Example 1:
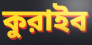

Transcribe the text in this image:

কুরাইব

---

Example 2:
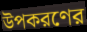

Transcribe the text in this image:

উপকরণের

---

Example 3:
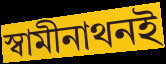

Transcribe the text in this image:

স্বামীনাথনই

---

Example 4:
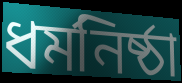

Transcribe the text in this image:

ধর্মনিষ্ঠা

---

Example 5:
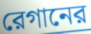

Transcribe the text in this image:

রেগানের